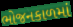
ભોજનકાળમાં